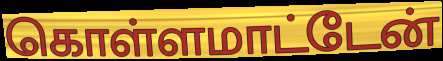
கொள்ளமாட்டேன்